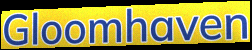
Gloomhaven